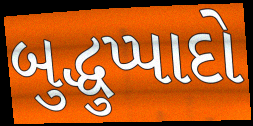
બુદ્ધુપ્પાદો